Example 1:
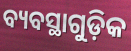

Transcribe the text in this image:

ବ୍ୟବସ୍ଥାଗୁଡ଼ିକ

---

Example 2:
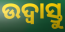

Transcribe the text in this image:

ଉଦ୍ବାସ୍ତୁ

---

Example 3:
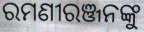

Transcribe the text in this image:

ରମଣୀରଞ୍ଜନଙ୍କୁ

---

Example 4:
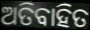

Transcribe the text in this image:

ଅତିବାହିତ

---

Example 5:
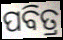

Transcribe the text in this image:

ପବିତ୍ର